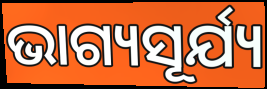
ଭାଗ୍ୟସୂର୍ଯ୍ୟ